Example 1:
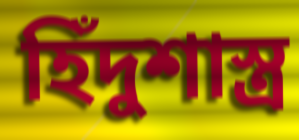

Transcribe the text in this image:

হিঁদুশাস্ত্র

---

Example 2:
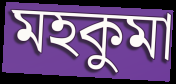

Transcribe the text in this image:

মহকুমা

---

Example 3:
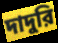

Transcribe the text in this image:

দাদুরি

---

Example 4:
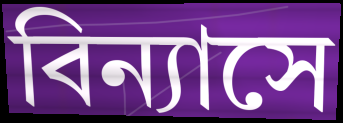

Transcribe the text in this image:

বিন্যাসে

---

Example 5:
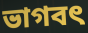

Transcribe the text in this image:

ভাগবৎ